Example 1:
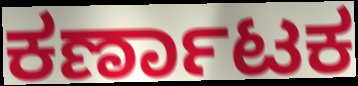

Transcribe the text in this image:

ಕರ್ಣಾಟಕ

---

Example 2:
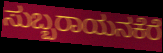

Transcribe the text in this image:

ಸುಬ್ಬರಾಯನಕೆರೆ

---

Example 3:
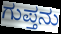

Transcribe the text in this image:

ಗುಪ್ತನು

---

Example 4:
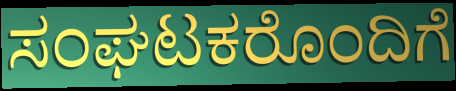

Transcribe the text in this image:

ಸಂಘಟಕರೊಂದಿಗೆ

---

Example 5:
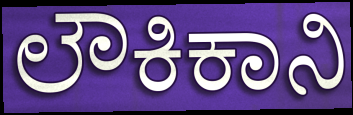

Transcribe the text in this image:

ಲೌಕಿಕಾನಿ